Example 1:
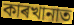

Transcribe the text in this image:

কাৰখানাত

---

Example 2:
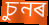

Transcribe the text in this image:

চুনৰ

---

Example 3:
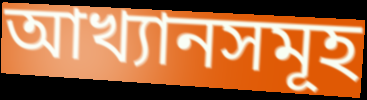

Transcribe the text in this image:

আখ্যানসমূহ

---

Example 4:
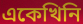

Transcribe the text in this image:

একেখিনি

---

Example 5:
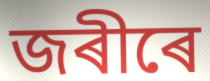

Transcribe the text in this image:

জৰীৰে